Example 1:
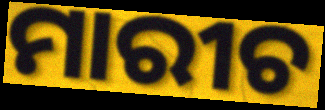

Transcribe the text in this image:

ମାରୀଚ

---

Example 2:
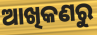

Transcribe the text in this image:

ଆଖିକଣରୁ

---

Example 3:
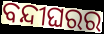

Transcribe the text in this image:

ବନ୍ଦୀଘରର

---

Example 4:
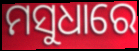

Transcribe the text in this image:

ମସୁଧାରେ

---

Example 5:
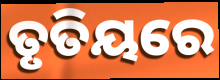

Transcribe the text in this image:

ତୃତିୟରେ